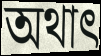
অথাৎ